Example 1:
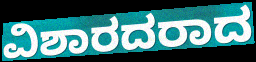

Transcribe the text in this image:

ವಿಶಾರದರಾದ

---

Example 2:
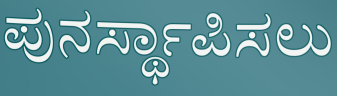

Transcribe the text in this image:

ಪುನರ್ಸ್ಥಾಪಿಸಲು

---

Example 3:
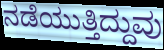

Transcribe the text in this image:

ನಡೆಯುತ್ತಿದ್ದುವು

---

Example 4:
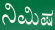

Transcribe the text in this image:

ನಿಮಿಷ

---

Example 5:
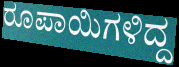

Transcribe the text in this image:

ರೂಪಾಯಿಗಳಿದ್ದ